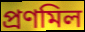
প্রণমিল